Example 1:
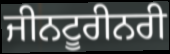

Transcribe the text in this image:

ਜੀਨਟੂਰੀਨਰੀ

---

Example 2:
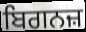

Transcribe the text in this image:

ਬਿਗਨਜ਼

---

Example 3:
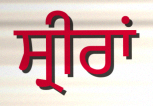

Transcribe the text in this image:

ਸ੍ਰੀਰਾਂ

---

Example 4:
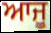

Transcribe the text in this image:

ਆਜੂ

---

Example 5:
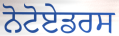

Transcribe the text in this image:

ਨੋਟੋਏਡਰਸ